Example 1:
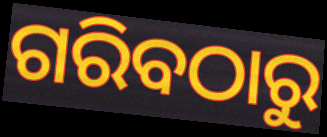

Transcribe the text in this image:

ଗରିବଠାରୁ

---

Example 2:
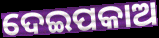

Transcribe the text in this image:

ଦେଇପକାଅ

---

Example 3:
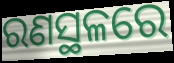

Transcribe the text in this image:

ରଣସ୍ଥଳରେ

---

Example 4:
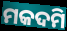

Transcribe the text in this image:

ମକଦମି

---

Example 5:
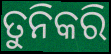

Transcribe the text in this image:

ତୁନିକରି